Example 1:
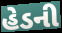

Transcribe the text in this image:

હેડની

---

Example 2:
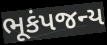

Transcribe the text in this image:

ભૂકંપજન્ય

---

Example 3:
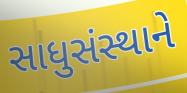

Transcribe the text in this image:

સાધુસંસ્થાને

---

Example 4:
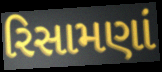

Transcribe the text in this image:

રિસામણાં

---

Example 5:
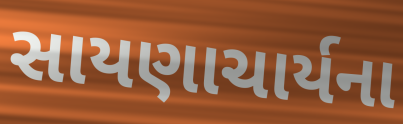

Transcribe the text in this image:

સાયણાચાર્યના